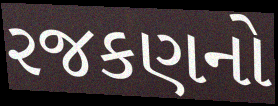
રજકણનો